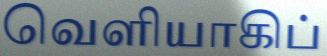
வெளியாகிப்